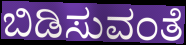
ಬಿಡಿಸುವಂತೆ